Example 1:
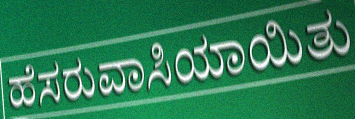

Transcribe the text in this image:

ಹೆಸರುವಾಸಿಯಾಯಿತು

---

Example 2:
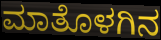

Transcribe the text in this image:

ಮಾತೊಳಗಿನ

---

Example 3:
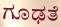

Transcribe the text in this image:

ಗೂಢತೆ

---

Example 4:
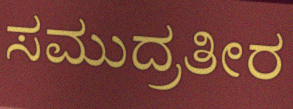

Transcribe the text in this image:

ಸಮುದ್ರತೀರ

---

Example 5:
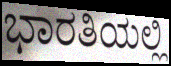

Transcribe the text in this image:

ಭಾರತಿಯಲ್ಲಿ